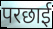
परछाई